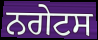
ਨਗੇਟਸ